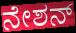
ನೇಶನ್